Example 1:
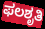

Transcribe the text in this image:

ಫಲಶೃತಿ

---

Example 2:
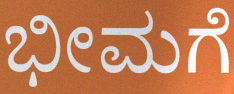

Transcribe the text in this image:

ಭೀಮಗೆ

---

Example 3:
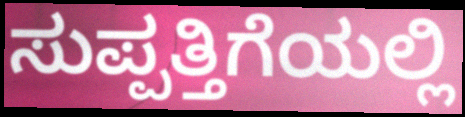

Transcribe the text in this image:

ಸುಪ್ಪತ್ತಿಗೆಯಲ್ಲಿ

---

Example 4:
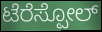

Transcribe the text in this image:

ಟೆರೆಸ್ಪೋಲ್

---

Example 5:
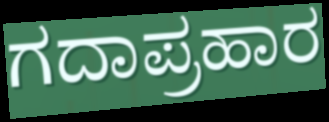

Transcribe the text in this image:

ಗದಾಪ್ರಹಾರ